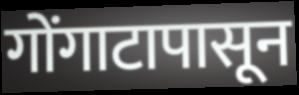
गोंगाटापासून